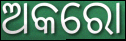
ଅକରୋ